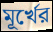
মূর্খের